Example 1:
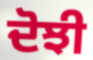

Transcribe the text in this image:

ਦੋਝੀ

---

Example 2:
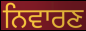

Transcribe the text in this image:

ਨਿਵਾਰਣ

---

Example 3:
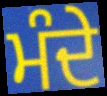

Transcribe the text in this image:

ਮੰਦੇ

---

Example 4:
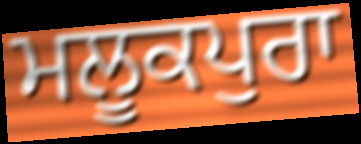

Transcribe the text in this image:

ਮਲੂਕਪੁਰਾ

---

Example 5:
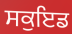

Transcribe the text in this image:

ਸਕੁਇਡ